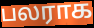
பலராக